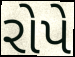
રોપે